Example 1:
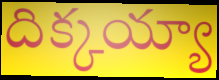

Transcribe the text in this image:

దిక్కయ్యా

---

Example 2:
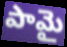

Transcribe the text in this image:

పామై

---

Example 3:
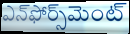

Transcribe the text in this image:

ఎన్‌ఫోర్స్‌మెంట్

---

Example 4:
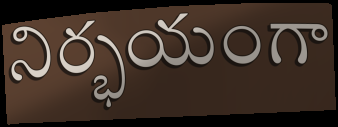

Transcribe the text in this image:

నిర్భయంగా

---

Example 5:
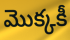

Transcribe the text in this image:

మొక్కకీ